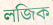
লজিক